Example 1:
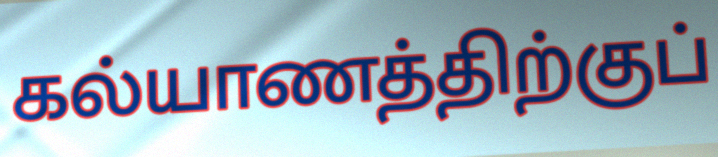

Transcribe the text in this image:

கல்யாணத்திற்குப்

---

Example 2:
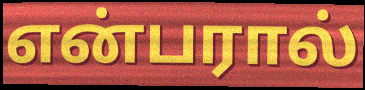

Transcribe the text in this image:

என்பரால்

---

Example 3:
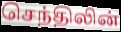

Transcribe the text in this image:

செந்திலின்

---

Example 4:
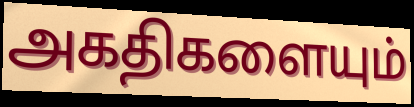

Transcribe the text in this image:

அகதிகளையும்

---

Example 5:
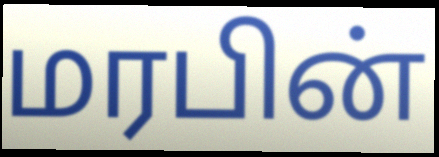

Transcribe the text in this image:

மரபின்